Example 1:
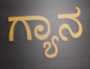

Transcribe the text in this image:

ಗ್ಯಾನ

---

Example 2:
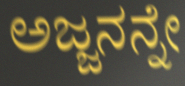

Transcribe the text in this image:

ಅಜ್ಜನನ್ನೇ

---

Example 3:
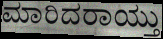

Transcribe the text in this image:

ಮಾರಿದರಾಯ್ತು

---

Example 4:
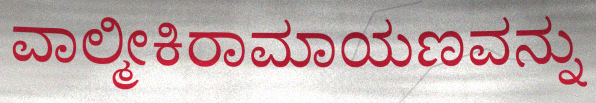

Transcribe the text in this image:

ವಾಲ್ಮೀಕಿರಾಮಾಯಣವನ್ನು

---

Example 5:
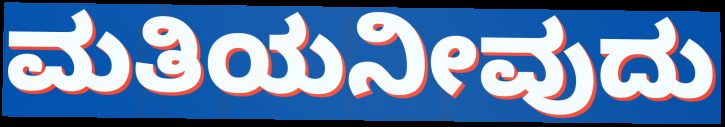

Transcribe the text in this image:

ಮತಿಯನೀವುದು